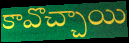
కావొచ్చాయి